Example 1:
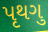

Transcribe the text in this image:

પૃથગુ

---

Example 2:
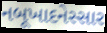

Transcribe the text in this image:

નબૂખાદનેસ્સાર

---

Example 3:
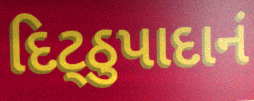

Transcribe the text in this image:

દિટ્ઠુપાદાનં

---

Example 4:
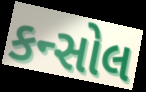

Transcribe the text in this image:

કન્સોલ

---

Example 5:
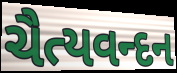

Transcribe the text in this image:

ચૈત્યવન્દન